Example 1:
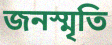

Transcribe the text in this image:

জনস্মৃতি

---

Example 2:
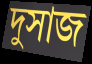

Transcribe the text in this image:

দুসাজ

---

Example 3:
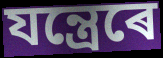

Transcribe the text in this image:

যন্ত্ৰেৰে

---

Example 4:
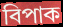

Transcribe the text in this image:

বিপাক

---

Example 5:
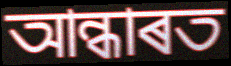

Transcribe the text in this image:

আন্ধাৰত